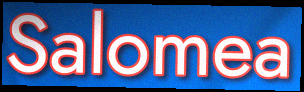
Salomea